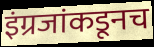
इंग्रजांकडूनच